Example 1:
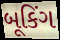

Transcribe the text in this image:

બૂકિંગ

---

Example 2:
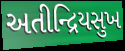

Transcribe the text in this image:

અતીન્દ્રિયસુખ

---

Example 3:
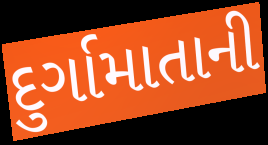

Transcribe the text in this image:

દુર્ગામાતાની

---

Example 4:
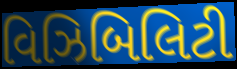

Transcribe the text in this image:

વિઝિબિલિટી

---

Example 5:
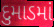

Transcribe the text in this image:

દુમાડમાં